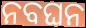
ନବଘନ